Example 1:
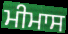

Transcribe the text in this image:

ਮੀਮਾਸ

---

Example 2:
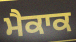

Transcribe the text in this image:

ਮੈਕਾਕ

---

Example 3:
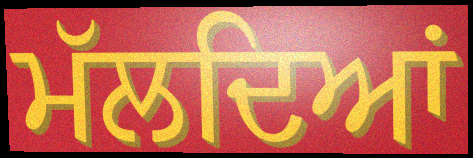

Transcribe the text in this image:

ਮੱਲਦਿਆਂ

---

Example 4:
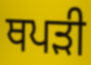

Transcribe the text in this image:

ਥਪੜੀ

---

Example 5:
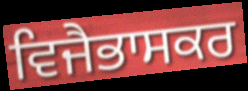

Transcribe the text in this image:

ਵਿਜੈਭਾਸਕਰ